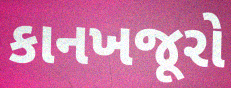
કાનખજૂરો